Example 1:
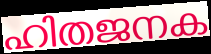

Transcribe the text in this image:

ഹിതജനക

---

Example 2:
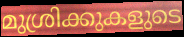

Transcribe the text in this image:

മുശ്രിക്കുകളുടെ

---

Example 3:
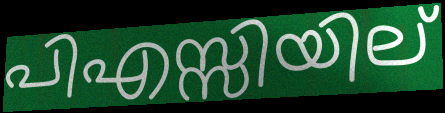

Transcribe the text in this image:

പിഎസ്സിയില്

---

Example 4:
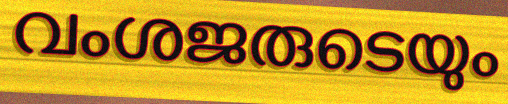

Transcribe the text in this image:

വംശജരുടെയും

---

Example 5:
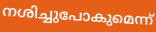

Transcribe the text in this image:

നശിച്ചുപോകുമെന്ന്